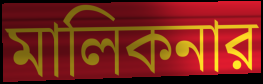
মালিকনার